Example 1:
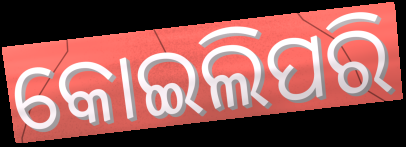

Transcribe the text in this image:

କୋଇଲିପରି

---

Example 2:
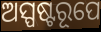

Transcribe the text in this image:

ଅସ୍ପଷ୍ଟରୂପେ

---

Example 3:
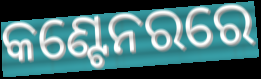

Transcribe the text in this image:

କଣ୍ଟେନରରେ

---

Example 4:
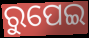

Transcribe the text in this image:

ରୁପେଇ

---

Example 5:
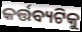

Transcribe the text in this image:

କର୍ତ୍ତବ୍ୟଟିକୁ